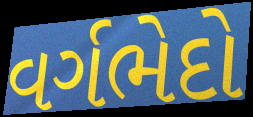
વર્ગભેદો